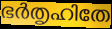
ഭർതൃഹിതേ